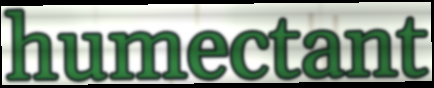
humectant